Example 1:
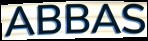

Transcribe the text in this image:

ABBAS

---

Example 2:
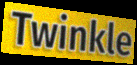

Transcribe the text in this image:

Twinkle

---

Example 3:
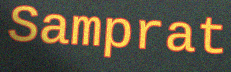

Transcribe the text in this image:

Samprat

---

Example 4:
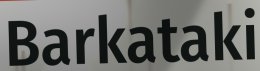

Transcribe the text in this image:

Barkataki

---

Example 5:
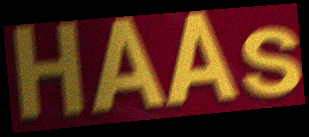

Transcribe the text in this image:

HAAs